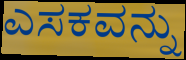
ಎಸಕವನ್ನು